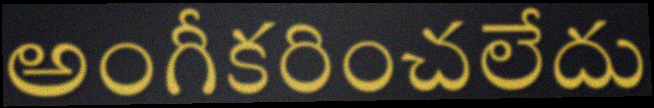
అంగీకరించలేదు